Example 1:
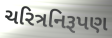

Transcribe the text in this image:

ચરિત્રનિરૂપણ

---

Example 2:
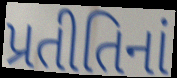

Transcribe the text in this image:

પ્રતીતિનાં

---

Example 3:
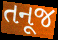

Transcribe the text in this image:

તનૂજ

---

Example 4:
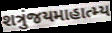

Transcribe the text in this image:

શત્રુંજયમાહાત્મ્ય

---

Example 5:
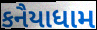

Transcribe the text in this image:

કનૈયાધામ